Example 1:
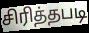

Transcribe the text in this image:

சிரித்தபடி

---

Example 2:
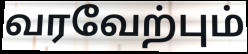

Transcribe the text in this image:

வரவேற்பும்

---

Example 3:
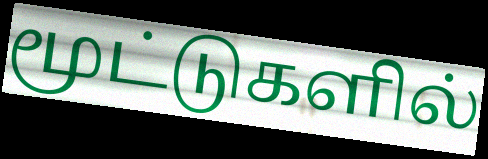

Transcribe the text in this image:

மூட்டுகளில்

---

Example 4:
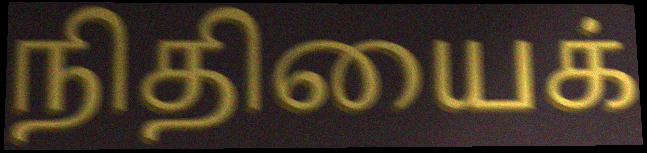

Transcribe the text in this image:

நிதியைக்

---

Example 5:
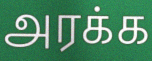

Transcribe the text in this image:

அரக்க